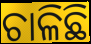
ଚାଳିଛି